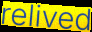
relived